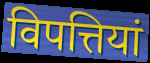
विपत्तियां